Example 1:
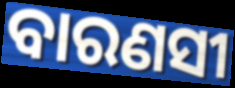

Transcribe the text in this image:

ବାରଣସୀ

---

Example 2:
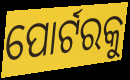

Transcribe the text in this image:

ପୋର୍ଟରକୁ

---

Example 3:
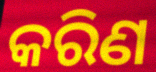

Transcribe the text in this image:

କରିଣ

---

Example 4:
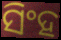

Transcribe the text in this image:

ସିଂହ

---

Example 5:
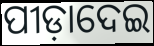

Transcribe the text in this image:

ପୀଡ଼ାଦେଇ